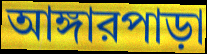
আঙ্গারপাড়া